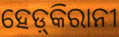
ହେଡ଼୍‌କିରାନୀ